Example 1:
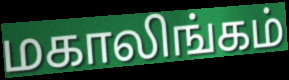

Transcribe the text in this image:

மகாலிங்கம்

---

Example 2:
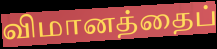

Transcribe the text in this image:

விமானத்தைப்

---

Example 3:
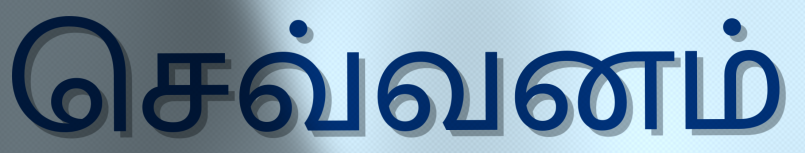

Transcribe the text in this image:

செவ்வனம்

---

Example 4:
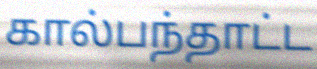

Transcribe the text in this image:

கால்பந்தாட்ட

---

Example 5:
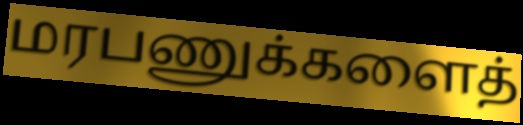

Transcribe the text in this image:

மரபணுக்களைத்